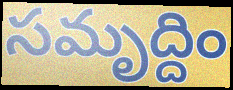
సమృద్దిం